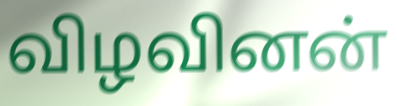
விழவினன்